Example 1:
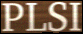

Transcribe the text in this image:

PLSI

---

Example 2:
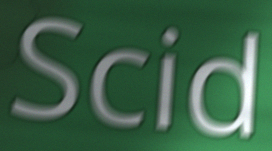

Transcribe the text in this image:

Scid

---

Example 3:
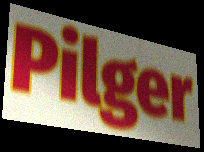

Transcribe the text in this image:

Pilger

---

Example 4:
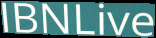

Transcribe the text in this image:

IBNLive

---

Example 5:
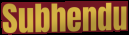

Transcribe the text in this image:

Subhendu